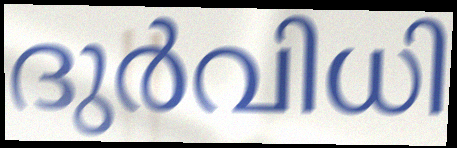
ദുർവിധി